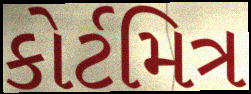
કોર્ટમિત્ર